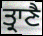
ਤ੍ਰਾਣੈ